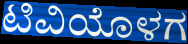
ಟಿವಿಯೊಳಗ